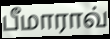
பீமாராவ்